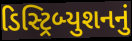
ડિસ્ટ્રિબ્યુશનનું